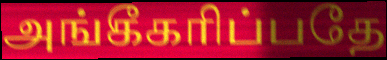
அங்கீகரிப்பதே